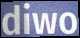
diwo